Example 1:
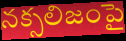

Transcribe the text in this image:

నక్సలిజంపై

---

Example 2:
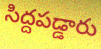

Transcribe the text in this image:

సిద్దపడ్డారు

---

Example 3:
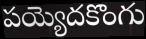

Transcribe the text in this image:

పయ్యెదకొంగు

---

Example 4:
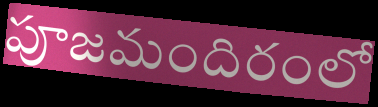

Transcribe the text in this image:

పూజమందిరంలో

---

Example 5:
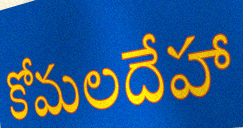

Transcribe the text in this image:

కోమలదేహా